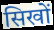
सिखों